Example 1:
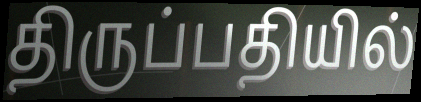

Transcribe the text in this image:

திருப்பதியில்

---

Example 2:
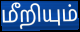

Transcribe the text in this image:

மீறியும்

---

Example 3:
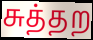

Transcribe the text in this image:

சுத்தற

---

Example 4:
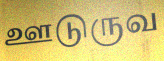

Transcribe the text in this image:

ஊடுருவ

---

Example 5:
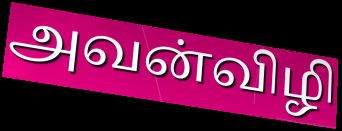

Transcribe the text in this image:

அவன்விழி